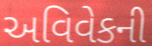
અવિવેકની